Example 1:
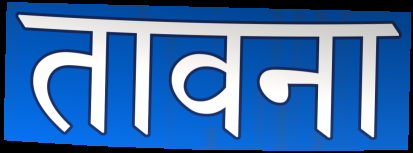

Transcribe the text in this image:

तावना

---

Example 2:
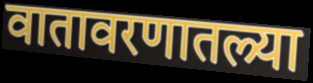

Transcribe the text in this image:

वातावरणातल्या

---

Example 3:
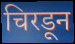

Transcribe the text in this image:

चिरडून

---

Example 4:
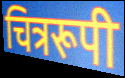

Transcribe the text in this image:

चित्ररूपी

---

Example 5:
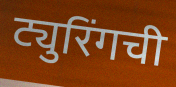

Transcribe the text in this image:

ट्युरिंगची